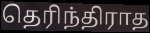
தெரிந்திராத